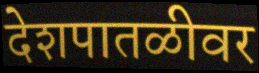
देशपातळीवर